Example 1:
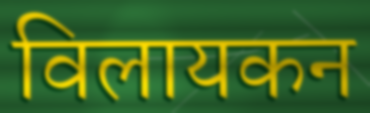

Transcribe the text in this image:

विलायकन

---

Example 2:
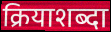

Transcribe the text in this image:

क्रियाशब्दा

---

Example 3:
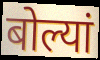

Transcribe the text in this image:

बोल्यां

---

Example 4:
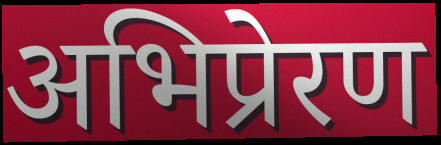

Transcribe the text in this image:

अभिप्रेरण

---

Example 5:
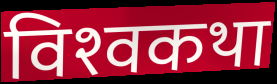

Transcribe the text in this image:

विश्वकथा